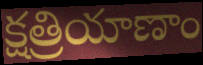
క్షత్రియాణాం